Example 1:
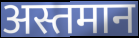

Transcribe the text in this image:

अस्तमान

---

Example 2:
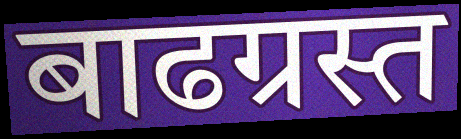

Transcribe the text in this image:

बाढग्रस्त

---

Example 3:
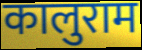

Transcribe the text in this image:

कालुराम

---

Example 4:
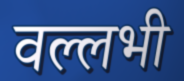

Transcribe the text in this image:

वल्लभी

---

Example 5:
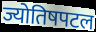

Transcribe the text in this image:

ज्योतिषपटल